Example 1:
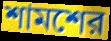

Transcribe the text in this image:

শামশের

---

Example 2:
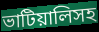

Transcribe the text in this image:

ভাটিয়ালিসহ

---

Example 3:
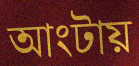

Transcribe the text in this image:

আংটায়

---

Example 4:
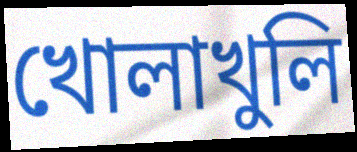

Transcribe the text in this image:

খোলাখুলি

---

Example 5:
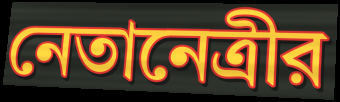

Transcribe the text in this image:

নেতানেত্রীর